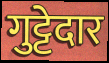
गुट्टेदार